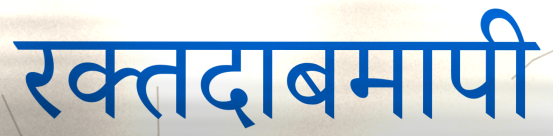
रक्तदाबमापी